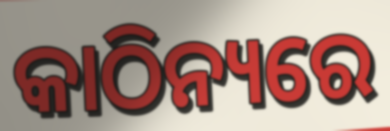
କାଠିନ୍ୟରେ